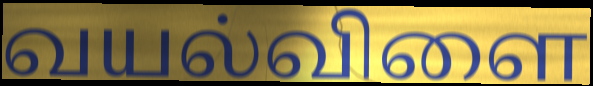
வயல்விளை